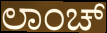
ಲಾಂಚ್